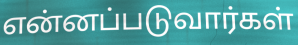
என்னப்படுவார்கள்